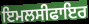
ਇਮਲਸੀਫਾਇਰ